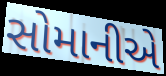
સોમાનીએ